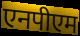
एनपीएम